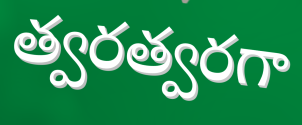
త్వరత్వరగా